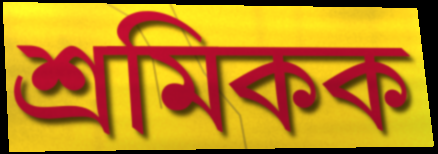
শ্ৰমিকক